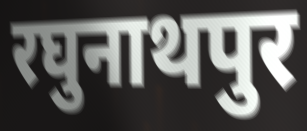
रघुनाथपुर